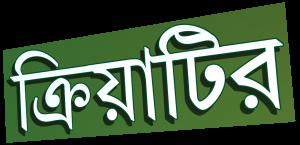
ক্রিয়াটির